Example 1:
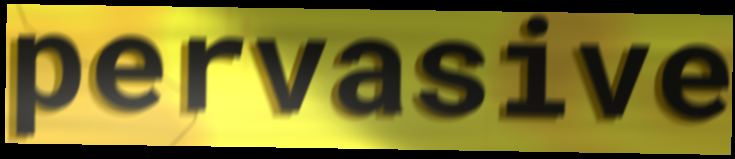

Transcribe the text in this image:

pervasive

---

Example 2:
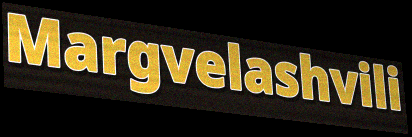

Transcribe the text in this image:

Margvelashvili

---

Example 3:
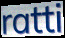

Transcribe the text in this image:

ratti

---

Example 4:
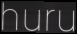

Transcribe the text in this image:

huru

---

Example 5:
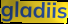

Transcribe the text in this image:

gladiis